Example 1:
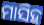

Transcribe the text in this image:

ମାସିହ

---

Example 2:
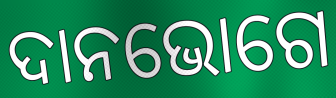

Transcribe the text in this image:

ଦାନଭୋଗେ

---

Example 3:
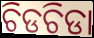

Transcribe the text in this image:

ଚିଡଚିଡା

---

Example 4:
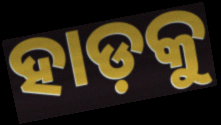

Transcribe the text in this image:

ହାଡ଼କୁ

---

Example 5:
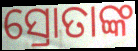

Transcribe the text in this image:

ସ୍ରୋତାଙ୍କ